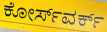
ಕೋರ್ಸ್‌ವರ್ಕ್